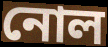
নোল